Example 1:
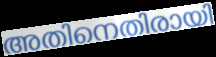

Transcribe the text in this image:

അതിനെതിരായി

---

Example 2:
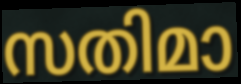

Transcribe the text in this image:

സതിമാ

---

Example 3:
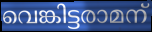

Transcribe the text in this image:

വെങ്കിട്ടരാമന്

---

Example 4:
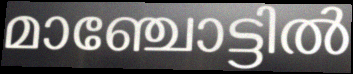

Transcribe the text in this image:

മാഞ്ചോട്ടിൽ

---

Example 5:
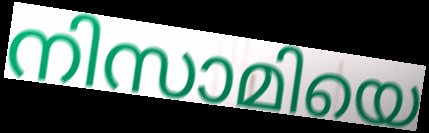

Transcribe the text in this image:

നിസാമിയെ